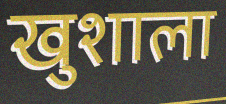
खुशाला